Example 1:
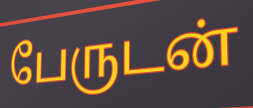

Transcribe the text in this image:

பேருடன்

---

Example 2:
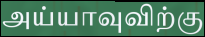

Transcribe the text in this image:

அய்யாவுவிற்கு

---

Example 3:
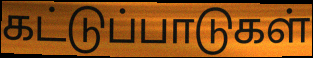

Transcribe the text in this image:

கட்டுப்பாடுகள்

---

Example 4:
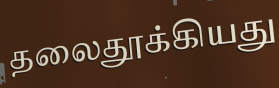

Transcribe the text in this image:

தலைதூக்கியது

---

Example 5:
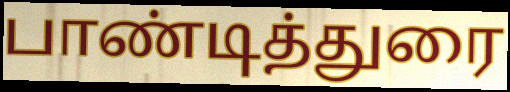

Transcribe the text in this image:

பாண்டித்துரை